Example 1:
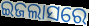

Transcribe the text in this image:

ଇଜଲାସରେ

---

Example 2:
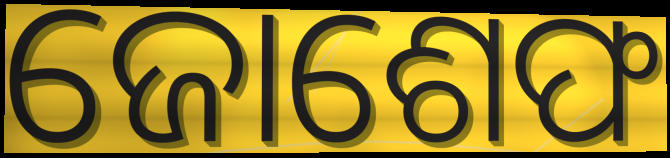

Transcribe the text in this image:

ଜୋଶେଫ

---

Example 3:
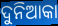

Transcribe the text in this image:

ଦୁନିଆକା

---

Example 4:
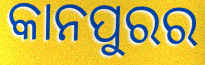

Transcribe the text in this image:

କାନପୁରର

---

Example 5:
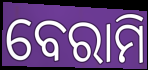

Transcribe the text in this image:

ବେରାମି